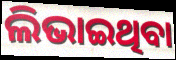
ଲିଭାଇଥିବା